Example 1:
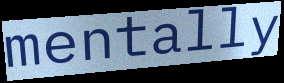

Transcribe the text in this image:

mentally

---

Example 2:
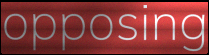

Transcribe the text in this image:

opposing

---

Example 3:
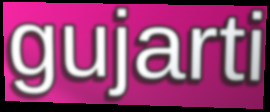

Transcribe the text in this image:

gujarti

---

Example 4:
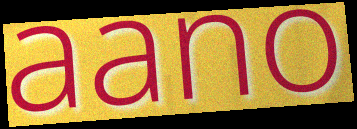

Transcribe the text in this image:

aano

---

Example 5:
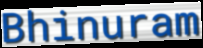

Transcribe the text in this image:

Bhinuram